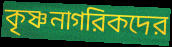
কৃষ্ণনাগরিকদের